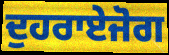
ਦੁਹਰਾਏਜੋਗ